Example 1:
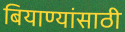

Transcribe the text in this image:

बियाण्यांसाठी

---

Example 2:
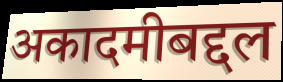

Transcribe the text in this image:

अकादमीबद्दल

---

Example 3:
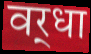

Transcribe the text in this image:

वर्धा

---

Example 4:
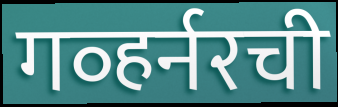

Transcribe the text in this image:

गव्हर्नरची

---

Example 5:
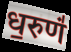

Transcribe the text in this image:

ध॒रुणं॑